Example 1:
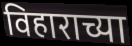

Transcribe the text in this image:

विहाराच्या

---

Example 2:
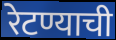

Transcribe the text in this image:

रेटण्याची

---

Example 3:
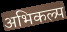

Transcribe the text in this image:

अभिकल्प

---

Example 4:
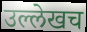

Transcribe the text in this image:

उल्लेखच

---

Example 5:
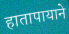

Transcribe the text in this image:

हातापायाने